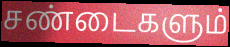
சண்டைகளும்